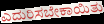
ಎದುರಿಸಬೇಕಾಯಿತು